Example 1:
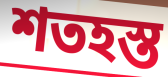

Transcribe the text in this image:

শতহস্ত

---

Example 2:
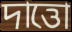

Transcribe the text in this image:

দাত্তো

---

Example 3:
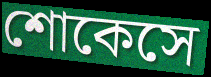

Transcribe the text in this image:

শোকেসে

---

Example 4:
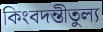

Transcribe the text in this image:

কিংবদন্তীতুল্য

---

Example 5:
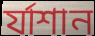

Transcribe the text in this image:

র্যাশান